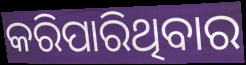
କରିପାରିଥିବାର